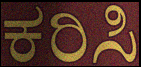
ಕರಿಸಿ